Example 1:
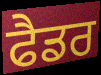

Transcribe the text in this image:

ਫੈਡਰ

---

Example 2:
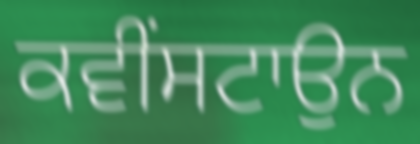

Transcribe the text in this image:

ਕਵੀਂਸਟਾਉਨ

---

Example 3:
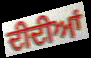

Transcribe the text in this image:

ਦੀਦੀਆਂ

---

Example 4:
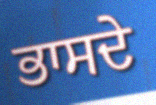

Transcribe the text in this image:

ਭਾਸਦੇ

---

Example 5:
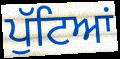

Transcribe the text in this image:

ਪੁੱਟਿਆਂ